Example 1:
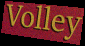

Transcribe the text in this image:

Volley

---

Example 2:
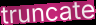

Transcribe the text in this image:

truncate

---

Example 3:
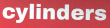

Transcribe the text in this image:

cylinders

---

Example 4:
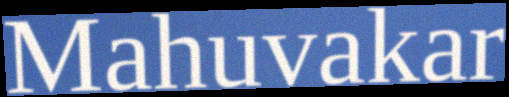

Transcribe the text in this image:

Mahuvakar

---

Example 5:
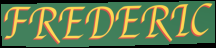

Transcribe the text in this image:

FREDERIC